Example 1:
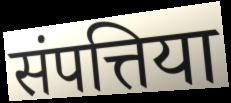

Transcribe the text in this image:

संपत्तिया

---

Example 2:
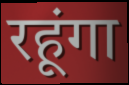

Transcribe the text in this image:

रहूंगा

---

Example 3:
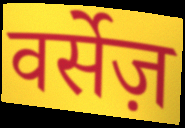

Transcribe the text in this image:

वर्सेज़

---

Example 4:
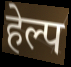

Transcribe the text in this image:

हेल्‍प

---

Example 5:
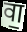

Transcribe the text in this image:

वा॒